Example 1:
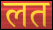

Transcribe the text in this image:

लत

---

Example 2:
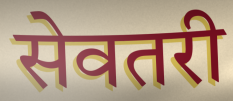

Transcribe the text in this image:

सेवतरी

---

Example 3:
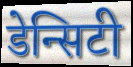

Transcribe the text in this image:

डेन्सिटी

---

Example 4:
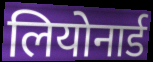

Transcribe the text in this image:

लियोनार्ड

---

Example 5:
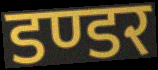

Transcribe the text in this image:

डण्डर